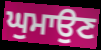
ਘੁਮਾਉਣ